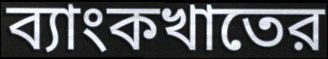
ব্যাংকখাতের